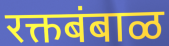
रक्तबंबाळ